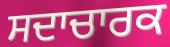
ਸਦਾਚਾਰਕ